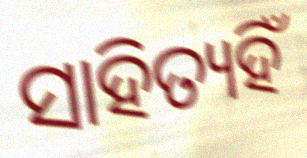
ସାହିତ୍ୟହିଁ